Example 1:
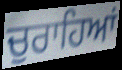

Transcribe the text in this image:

ਚੁਰਾਹਿਆਂ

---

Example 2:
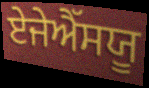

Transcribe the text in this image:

ਏਜੇਐੱਸਯੂ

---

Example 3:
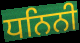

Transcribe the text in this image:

ਧਨਿਨੀ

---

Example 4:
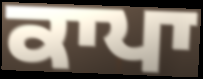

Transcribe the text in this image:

ਕਾਪਾ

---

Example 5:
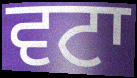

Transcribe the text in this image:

ਵਟਾ